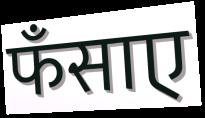
फँसाए